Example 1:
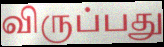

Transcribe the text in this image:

விருப்பது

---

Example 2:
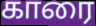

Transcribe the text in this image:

காரை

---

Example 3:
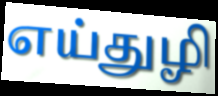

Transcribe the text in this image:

எய்துழி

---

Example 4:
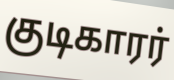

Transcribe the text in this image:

குடிகாரர்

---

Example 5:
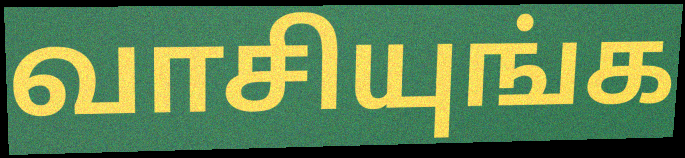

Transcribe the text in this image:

வாசியுங்க